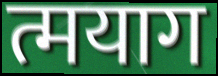
त्मयाग